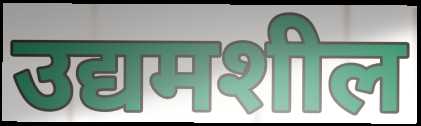
उद्यमशील